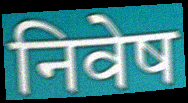
निवेष